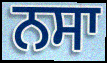
ਨਸਾ